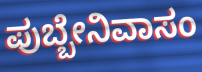
ಪುಬ್ಬೇನಿವಾಸಂ